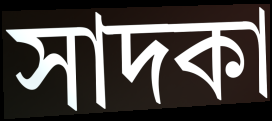
সাদকা